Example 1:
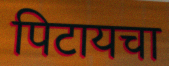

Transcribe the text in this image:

पिटायचा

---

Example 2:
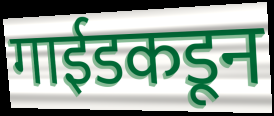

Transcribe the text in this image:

गाईडकडून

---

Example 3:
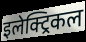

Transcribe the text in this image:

इलेक्ट्रिकल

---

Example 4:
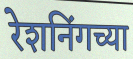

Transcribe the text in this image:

रेशनिंगच्या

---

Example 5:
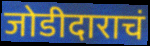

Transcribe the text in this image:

जोडीदाराचं